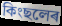
কিংছলেৰ